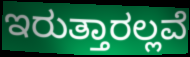
ಇರುತ್ತಾರಲ್ಲವೆ